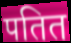
पतित